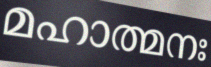
മഹാത്മനഃ